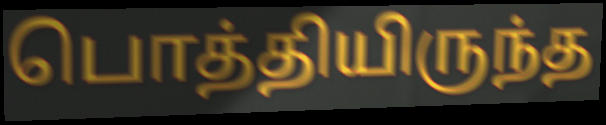
பொத்தியிருந்த